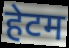
हेटम